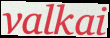
valkai